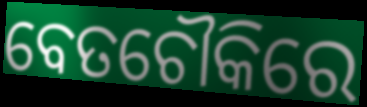
ବେତଚୌକିରେ